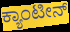
ಕ್ಯಾಂಟೀನ್